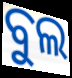
ବୁଲ